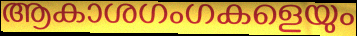
ആകാശഗംഗകളെയും